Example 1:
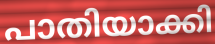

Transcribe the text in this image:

പാതിയാക്കി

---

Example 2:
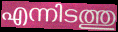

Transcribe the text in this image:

എന്നിടത്തു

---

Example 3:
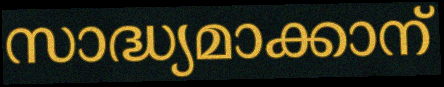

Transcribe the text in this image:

സാദ്ധ്യമാക്കാന്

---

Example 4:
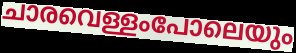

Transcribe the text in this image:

ചാരവെള്ളംപോലെയും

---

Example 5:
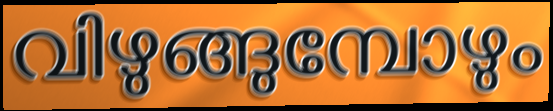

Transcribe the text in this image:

വിഴുങ്ങുമ്പോഴും